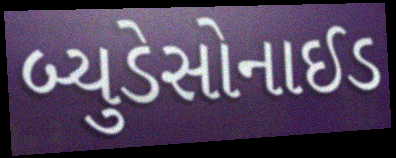
બ્યુડેસોનાઈડ